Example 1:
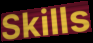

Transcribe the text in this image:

Skills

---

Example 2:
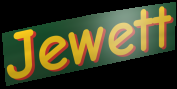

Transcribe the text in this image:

Jewett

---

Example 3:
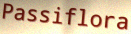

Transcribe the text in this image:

Passiflora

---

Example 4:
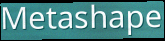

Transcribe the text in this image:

Metashape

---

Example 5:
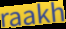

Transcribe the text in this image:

raakh